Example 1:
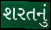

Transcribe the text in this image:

શરતનું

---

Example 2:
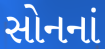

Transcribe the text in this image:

સોનનાં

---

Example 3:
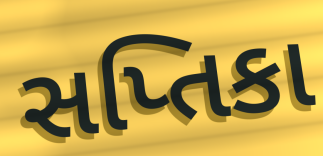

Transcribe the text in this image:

સપ્તિકા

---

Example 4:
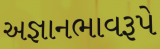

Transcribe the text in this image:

અજ્ઞાનભાવરૂપે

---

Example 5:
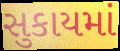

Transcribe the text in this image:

સુકાયમાં